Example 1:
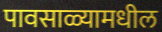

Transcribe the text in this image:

पावसाळ्यामधील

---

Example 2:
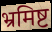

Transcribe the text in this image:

भ्रमिष्ट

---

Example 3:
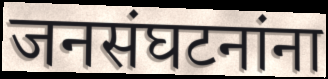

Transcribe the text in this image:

जनसंघटनांना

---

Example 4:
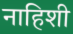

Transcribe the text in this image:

नाहिशी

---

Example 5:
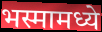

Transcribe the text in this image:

भस्मामध्ये